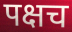
पक्षच